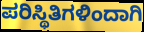
ಪರಿಸ್ಥಿತಿಗಳಿಂದಾಗಿ